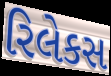
રિલેકસ